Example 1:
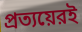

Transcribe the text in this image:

প্রত্যয়েরই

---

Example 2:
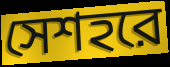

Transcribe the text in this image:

সেশহরে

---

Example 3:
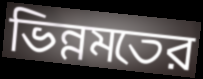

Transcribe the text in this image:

ভিন্নমতের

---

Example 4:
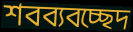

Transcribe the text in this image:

শবব্যবচ্ছেদ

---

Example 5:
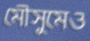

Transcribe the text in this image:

মৌসুমেও